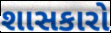
શાસકારો